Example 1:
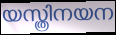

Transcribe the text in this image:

യസ്ത്രിനയന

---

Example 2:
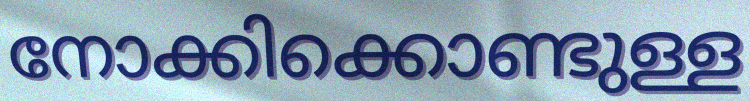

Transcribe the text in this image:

നോക്കിക്കൊണ്ടുള്ള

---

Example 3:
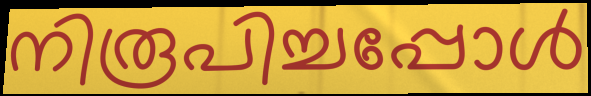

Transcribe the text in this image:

നിരൂപിച്ചപ്പോൾ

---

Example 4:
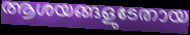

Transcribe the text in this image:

ആശയങ്ങളുടേതായ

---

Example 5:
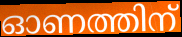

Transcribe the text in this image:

ഓണത്തിന്